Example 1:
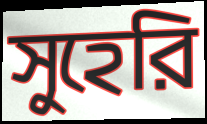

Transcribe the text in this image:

সুহেরি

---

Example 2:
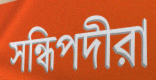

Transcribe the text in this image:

সন্ধিপদীরা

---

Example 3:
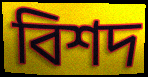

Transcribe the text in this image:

বিশদ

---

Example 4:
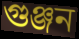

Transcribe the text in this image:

গুঞ্জন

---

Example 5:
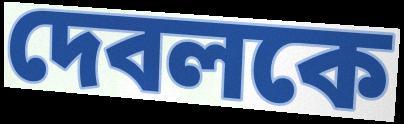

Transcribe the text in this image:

দেবলকে